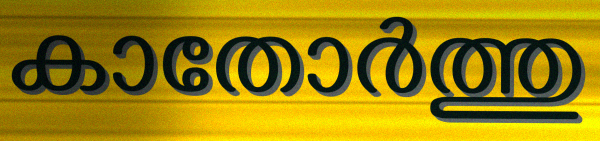
കാതോർത്തു